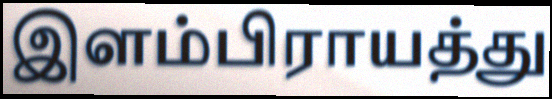
இளம்பிராயத்து